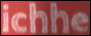
ichhe